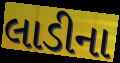
લાડીના